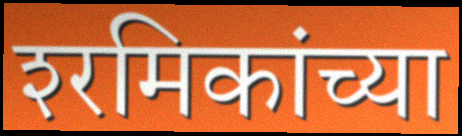
श्रमिकांच्या